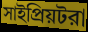
সাইপ্রিয়টরা